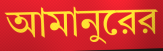
আমানুরের